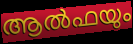
ആൽഫയും